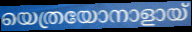
യെത്രയോനാളായ്